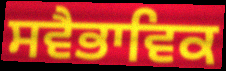
ਸਵੈਭਾਵਿਕ